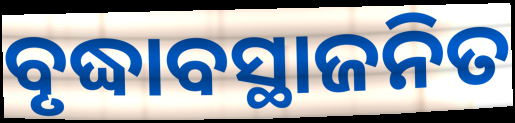
ବୃଦ୍ଧାବସ୍ଥାଜନିତ